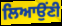
ਲਿਆਉਂਣੀ